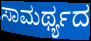
ಸಾಮರ್ಥ್ಯದ